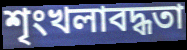
শৃংখলাবদ্ধতা